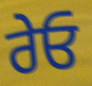
ਰੇਓ